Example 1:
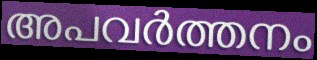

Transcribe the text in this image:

അപവർത്തനം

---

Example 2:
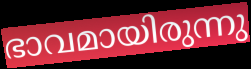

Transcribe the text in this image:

ഭാവമായിരുന്നു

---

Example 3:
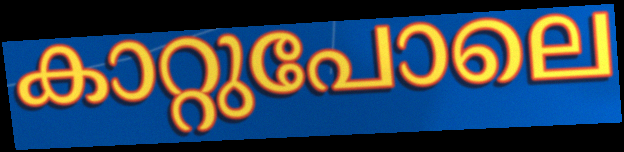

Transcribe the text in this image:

കാറ്റുപോലെ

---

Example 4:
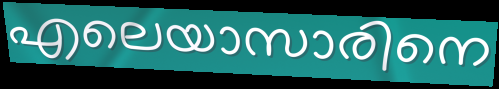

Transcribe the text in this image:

എലെയാസാരിനെ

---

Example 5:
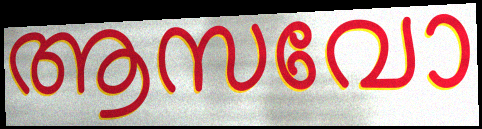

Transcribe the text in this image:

ആസവോ